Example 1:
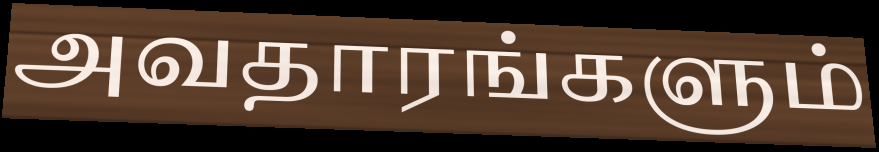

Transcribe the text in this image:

அவதாரங்களும்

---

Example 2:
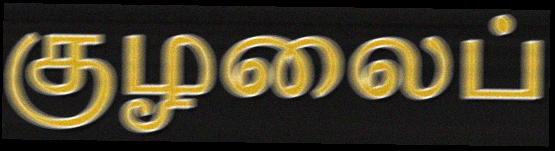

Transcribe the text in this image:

குழலைப்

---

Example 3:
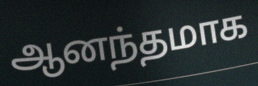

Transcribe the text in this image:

ஆனந்தமாக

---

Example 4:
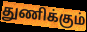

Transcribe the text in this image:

துணிக்கும்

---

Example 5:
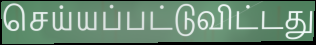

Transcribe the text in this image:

செய்யப்பட்டுவிட்டது